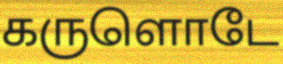
கருளொடே